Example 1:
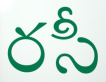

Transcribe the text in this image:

రసీ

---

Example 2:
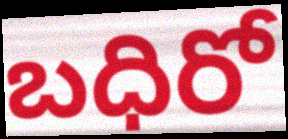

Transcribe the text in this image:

బధిరో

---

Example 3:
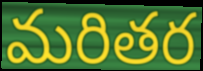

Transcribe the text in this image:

మరితర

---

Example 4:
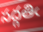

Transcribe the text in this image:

సద్గతిఁ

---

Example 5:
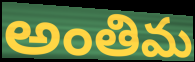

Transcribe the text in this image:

అంతిమ